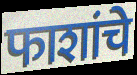
फाशांचे